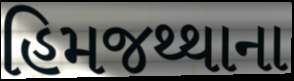
હિમજથ્થાના